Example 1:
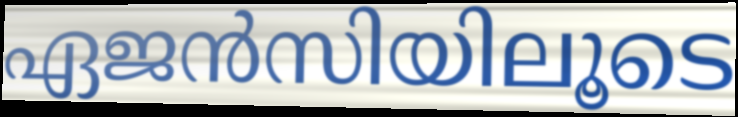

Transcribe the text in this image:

ഏജൻസിയിലൂടെ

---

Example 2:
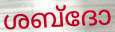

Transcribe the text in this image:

ശബ്ദോ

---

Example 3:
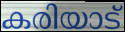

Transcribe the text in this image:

കരിയാട്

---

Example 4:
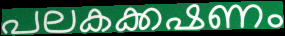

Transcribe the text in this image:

പലകക്കഷണം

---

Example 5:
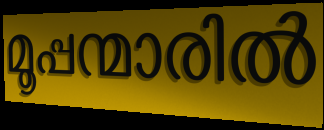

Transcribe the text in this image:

മൂപ്പന്മാരിൽ